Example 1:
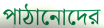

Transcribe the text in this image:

পাঠানোদের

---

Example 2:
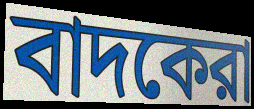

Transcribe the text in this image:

বাদকেরা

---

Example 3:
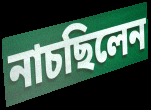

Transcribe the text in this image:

নাচছিলেন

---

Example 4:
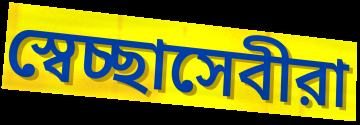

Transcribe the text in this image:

স্বেচ্ছাসেবীরা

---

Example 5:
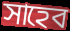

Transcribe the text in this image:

সাহেব